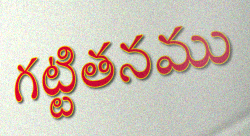
గట్టితనము